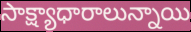
సాక్ష్యాధారాలున్నాయి